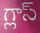
గ్లాస్